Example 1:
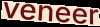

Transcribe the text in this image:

veneer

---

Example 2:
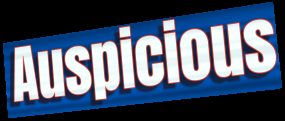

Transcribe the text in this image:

Auspicious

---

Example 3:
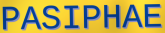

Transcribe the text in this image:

PASIPHAE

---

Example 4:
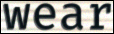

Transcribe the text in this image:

wear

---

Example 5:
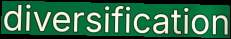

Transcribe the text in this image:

diversification